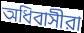
অধিবাসীরা